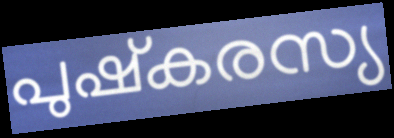
പുഷ്കരസ്യ